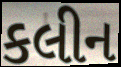
કલીન